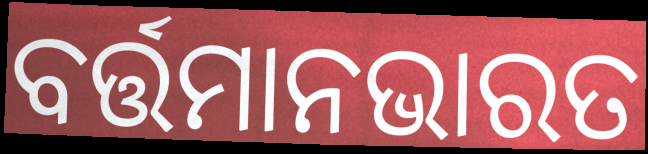
ବର୍ତ୍ତମାନଭାରତ